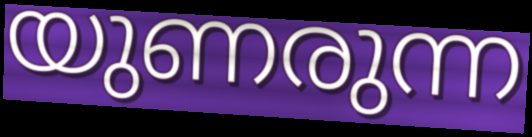
യുണരുന്ന